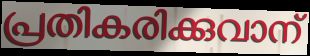
പ്രതികരിക്കുവാന്